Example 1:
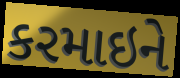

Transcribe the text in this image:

કરમાઇને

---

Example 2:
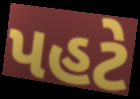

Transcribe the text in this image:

પહટે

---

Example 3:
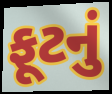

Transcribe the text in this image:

ફૂટનું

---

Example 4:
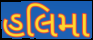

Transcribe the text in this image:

હલિમા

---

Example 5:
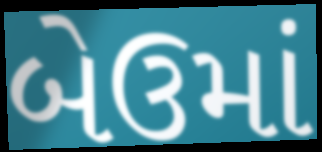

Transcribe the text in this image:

બેઉમાં